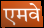
एमवे